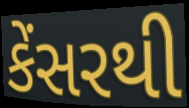
કેંસરથી